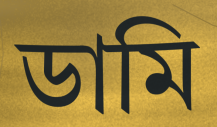
ডামি